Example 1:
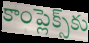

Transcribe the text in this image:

కాంప్లెక్స్‌కు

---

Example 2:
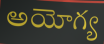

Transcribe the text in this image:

అయోగ్య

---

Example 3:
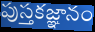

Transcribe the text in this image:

పుస్తకజ్ఞానం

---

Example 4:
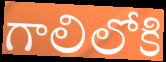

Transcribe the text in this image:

గాలిలోకి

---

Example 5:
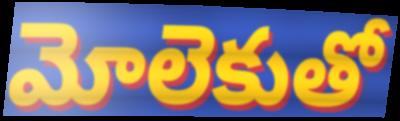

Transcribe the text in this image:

మోలెకుతో